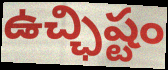
ఉచ్ఛిష్టం